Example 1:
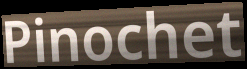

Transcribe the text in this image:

Pinochet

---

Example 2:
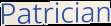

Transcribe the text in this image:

Patrician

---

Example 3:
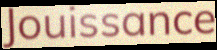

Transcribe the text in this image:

Jouissance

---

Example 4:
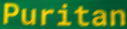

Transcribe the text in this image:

Puritan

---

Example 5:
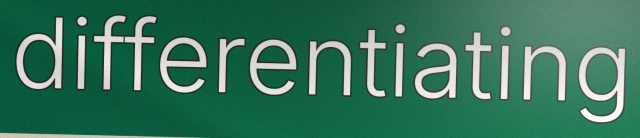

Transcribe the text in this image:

differentiating